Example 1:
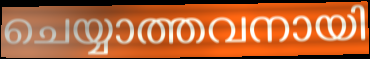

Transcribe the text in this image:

ചെയ്യാത്തവനായി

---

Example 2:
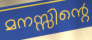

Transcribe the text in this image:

മനസ്സിന്റെ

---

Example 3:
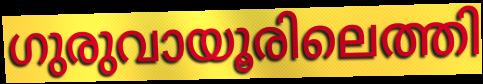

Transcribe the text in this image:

ഗുരുവായൂരിലെത്തി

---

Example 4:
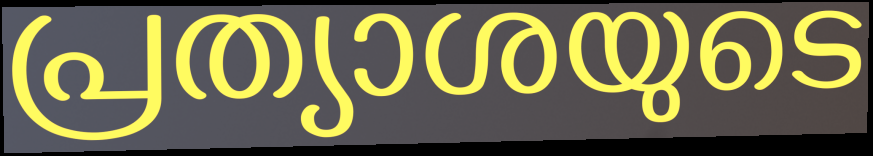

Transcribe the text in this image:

പ്രത്യാശയുടെ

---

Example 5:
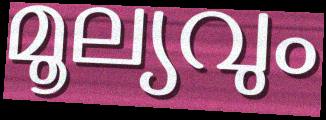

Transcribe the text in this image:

മൂല്യവും